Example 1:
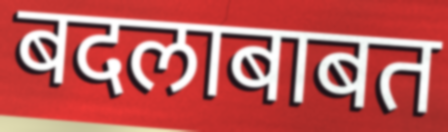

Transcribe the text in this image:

बदलाबाबत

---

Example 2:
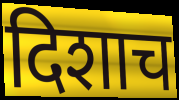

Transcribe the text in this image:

दिशाच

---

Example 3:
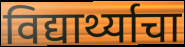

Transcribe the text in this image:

विद्यार्थ्याचा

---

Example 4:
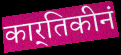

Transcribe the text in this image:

कार्तिकीनं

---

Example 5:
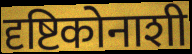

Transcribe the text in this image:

दृष्टिकोनाशी